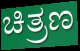
ಚಿತ್ರಣ